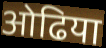
ओढिया